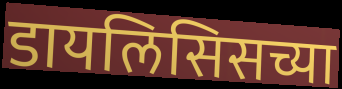
डायलिसिसच्या